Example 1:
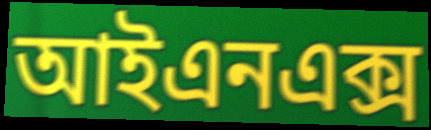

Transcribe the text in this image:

আইএনএক্স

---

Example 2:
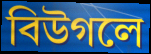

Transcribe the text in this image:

বিউগলে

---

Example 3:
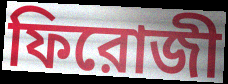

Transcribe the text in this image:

ফিরোজী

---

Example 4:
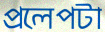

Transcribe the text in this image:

প্রলেপটা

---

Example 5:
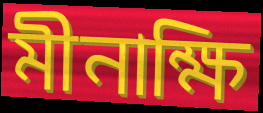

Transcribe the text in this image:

মীনাক্ষি